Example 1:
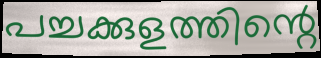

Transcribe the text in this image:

പച്ചക്കുളത്തിന്റെ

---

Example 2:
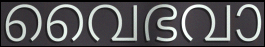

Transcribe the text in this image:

വൈഭവാ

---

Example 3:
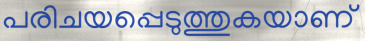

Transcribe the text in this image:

പരിചയപ്പെടുത്തുകയാണ്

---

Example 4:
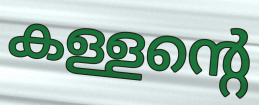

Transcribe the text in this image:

കള്ളന്റെ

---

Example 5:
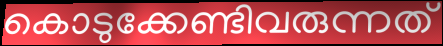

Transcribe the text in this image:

കൊടുക്കേണ്ടിവരുന്നത്